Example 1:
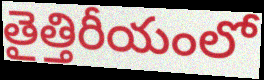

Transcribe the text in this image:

తైత్తిరీయంలో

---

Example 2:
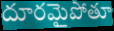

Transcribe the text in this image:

దూరమైపోతూ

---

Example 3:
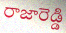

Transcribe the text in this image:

రాజారెడ్డి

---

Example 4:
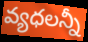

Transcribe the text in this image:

వ్యధలన్నీ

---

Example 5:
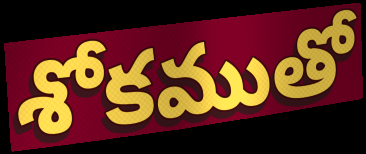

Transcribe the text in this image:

శోకముతో